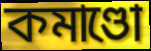
কমাণ্ডো